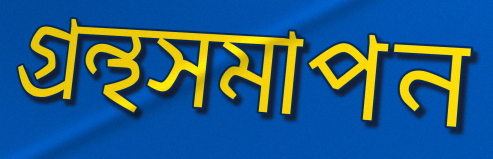
গ্রন্থসমাপন